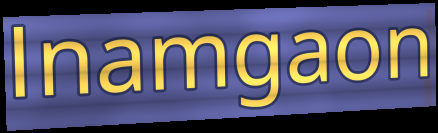
Inamgaon